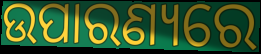
ଉପାରଣ୍ୟରେ